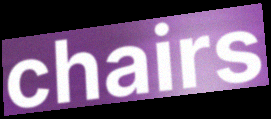
chairs